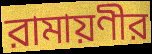
রামায়ণীর